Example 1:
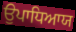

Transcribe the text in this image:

ਉਪਾਧਿਆਯ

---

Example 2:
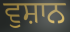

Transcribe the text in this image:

ਵੁਸ਼ਾਨ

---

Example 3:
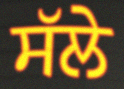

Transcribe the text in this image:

ਸੱਲੇ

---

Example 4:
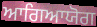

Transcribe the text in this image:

ਆਗਿਆਯੋਗ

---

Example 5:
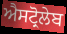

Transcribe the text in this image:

ਐਸਟ੍ਰੋਲੇਬ